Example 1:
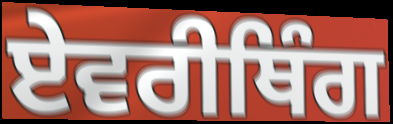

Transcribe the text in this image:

ਏਵਰੀਥਿੰਗ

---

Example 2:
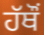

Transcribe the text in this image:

ਹੱਥੌਂ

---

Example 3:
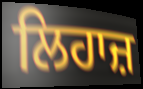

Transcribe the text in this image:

ਲਿਹਾਜ਼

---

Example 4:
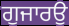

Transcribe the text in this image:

ਗੁਜਾਰਉ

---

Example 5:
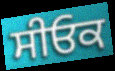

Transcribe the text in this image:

ਸੀਓਕ